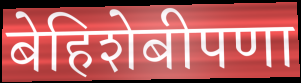
बेहिशेबीपणा